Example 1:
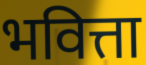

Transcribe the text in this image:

भवित्ता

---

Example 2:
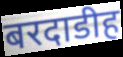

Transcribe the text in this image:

बरदाडीह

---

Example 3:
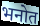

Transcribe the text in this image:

भनोत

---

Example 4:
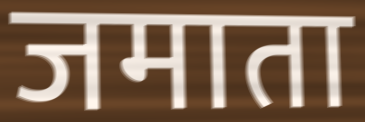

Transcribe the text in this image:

जमाता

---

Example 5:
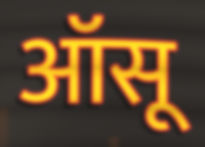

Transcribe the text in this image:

ऑसू